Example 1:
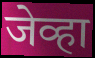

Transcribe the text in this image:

जेव्हा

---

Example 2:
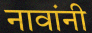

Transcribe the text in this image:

नावांनी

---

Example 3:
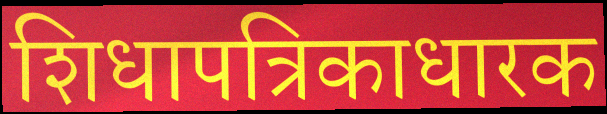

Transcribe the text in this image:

शिधापत्रिकाधारक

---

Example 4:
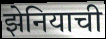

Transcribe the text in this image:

झेनियाची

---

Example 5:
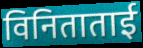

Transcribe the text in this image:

विनिताताई